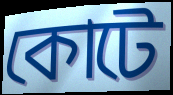
কোটে